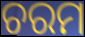
ଚରମ